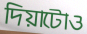
দিয়াটোও